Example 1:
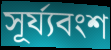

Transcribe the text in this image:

সূর্য্যবংশ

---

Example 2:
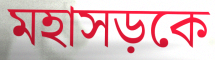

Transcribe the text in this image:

মহাসড়কে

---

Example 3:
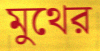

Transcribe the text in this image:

মুথের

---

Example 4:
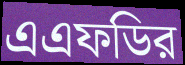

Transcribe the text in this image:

এএফডির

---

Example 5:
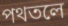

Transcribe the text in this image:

পথতলে